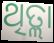
ଥିତ୍ଲା